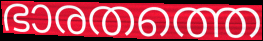
ഭാരതത്തെ